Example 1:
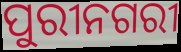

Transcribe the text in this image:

ପୁରୀନଗରୀ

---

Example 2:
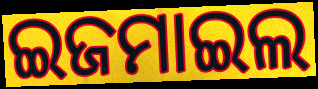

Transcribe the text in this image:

ଇଜମାଇଲ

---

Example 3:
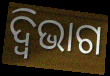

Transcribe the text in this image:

ଦ୍ୱିଭାଗ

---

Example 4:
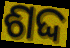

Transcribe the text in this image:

ଶଦ୍ଦ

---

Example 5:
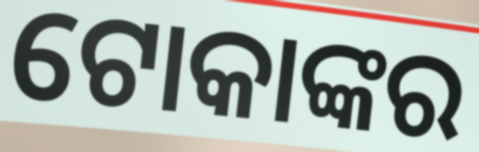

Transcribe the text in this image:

ଟୋକାଙ୍କର